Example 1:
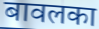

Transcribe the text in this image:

बावलका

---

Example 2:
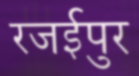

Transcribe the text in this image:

रजईपुर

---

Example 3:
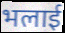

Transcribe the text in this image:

भलाई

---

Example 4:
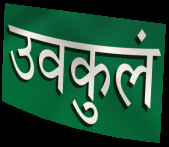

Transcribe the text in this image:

उवकुलं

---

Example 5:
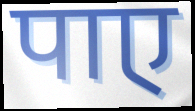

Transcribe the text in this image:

पाए